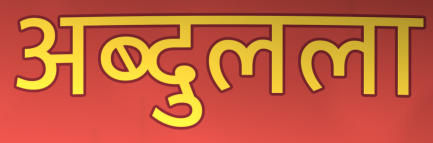
अब्दुलला